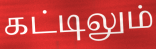
கட்டிலும்